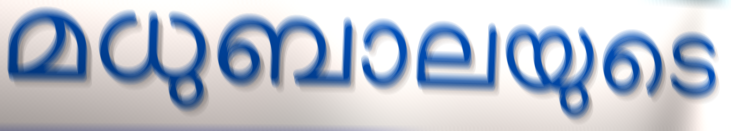
മധുബാലയുടെ